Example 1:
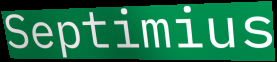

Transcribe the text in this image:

Septimius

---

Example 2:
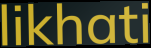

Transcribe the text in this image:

likhati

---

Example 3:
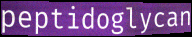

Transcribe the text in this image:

peptidoglycan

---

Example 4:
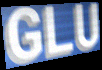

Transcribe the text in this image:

GLU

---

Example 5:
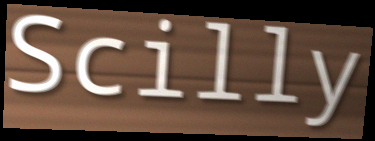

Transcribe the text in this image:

Scilly